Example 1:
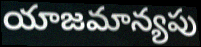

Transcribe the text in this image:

యాజమాన్యపు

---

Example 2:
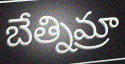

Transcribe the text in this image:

బేత్నిమ్రా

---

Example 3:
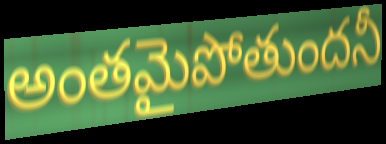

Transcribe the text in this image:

అంతమైపోతుందనీ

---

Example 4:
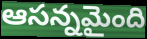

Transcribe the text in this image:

ఆసన్నమైంది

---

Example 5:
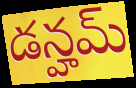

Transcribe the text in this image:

డన్హమ్